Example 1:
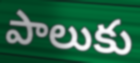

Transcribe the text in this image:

పాలుకు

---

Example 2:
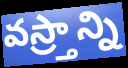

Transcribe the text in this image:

వస్ర్తాన్ని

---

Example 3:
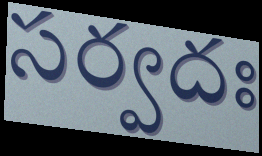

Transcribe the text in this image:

సర్వదః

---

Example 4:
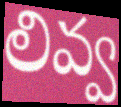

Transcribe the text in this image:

లివ్వ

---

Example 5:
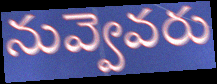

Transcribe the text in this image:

నువ్వెవరు